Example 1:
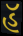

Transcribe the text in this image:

હૅ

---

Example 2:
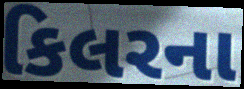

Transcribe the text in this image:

કિલરના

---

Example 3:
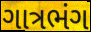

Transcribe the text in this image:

ગાત્રભંગ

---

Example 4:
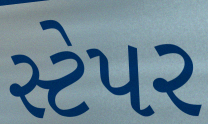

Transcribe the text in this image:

સ્ટેપર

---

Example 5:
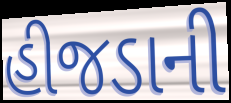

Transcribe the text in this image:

હીજડાની